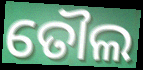
ତୌଲ